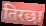
तिरछा